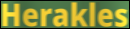
Herakles